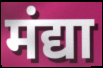
मंद्या